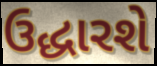
ઉદ્ધારશે